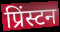
प्रिंस्टन